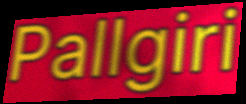
Pallgiri